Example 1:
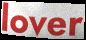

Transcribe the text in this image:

lover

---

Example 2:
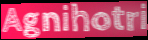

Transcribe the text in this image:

Agnihotri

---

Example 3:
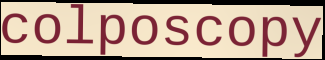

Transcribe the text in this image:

colposcopy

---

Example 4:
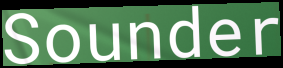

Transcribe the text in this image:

Sounder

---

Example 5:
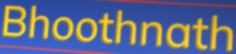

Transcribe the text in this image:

Bhoothnath